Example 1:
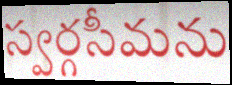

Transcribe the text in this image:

స్వర్గసీమను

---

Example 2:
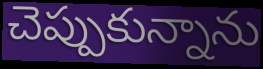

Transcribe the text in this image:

చెప్పుకున్నాను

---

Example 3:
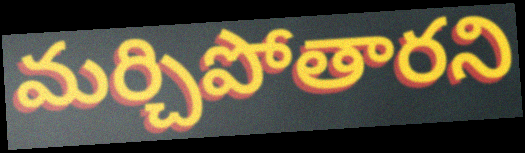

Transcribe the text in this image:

మర్చిపోతారని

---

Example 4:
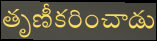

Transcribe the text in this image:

తృణీకరించాడు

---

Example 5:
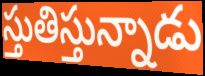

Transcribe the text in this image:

స్తుతిస్తున్నాడు